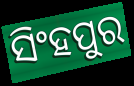
ସିଂହପୁର